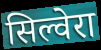
सिल्वेरा